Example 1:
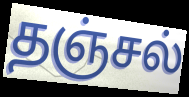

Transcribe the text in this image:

தஞ்சல்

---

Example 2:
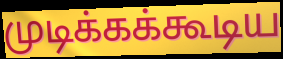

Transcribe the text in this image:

முடிக்கக்கூடிய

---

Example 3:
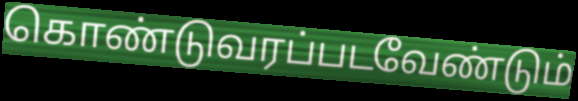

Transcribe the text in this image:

கொண்டுவரப்படவேண்டும்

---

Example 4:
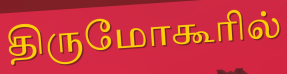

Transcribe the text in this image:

திருமோகூரில்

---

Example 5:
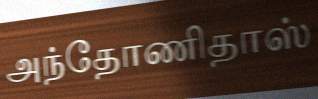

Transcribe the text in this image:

அந்தோணிதாஸ்